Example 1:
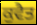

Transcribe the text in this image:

ਕੁਵੈਤ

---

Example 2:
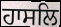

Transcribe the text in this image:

ਹਾਸਲਿ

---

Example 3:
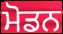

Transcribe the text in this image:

ਮੋਡਨ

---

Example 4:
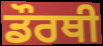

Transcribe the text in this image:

ਡੌਰਥੀ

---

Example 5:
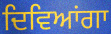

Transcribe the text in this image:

ਦਿਵਿਆਂਗਾ